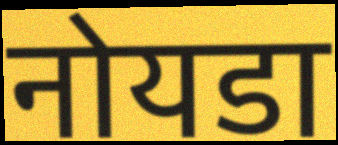
नोयडा